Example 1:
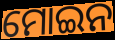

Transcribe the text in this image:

ମୋଇନ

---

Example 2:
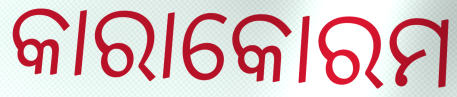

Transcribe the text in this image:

କାରାକୋରମ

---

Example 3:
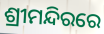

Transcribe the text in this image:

ଶ୍ରୀମନ୍ଦିରରେ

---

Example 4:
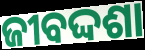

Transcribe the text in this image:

ଜୀବଦ୍ଦଶା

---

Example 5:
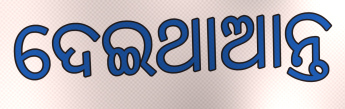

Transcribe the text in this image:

ଦେଇଥାଆନ୍ତ